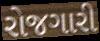
રોજગારી